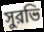
সুরভি